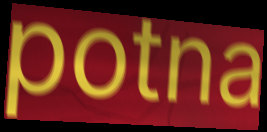
potna